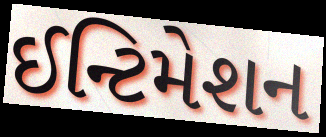
ઈન્ટિમેશન